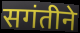
सगंतीने